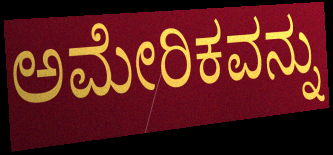
ಅಮೇರಿಕವನ್ನು